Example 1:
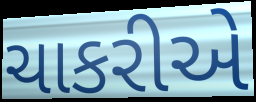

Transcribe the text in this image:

ચાકરીએ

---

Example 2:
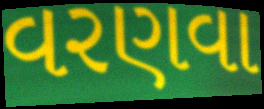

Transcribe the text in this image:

વરણવા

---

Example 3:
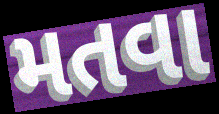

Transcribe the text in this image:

મતવા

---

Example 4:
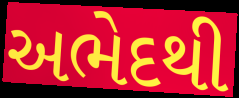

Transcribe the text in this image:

અભેદથી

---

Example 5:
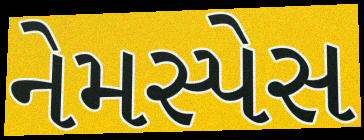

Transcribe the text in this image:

નેમસ્પેસ